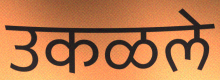
उकळले